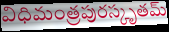
విధిమంత్రపురస్కృతమ్